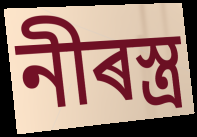
নীৰস্ত্ৰ